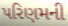
પરિણમની